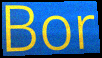
Bor